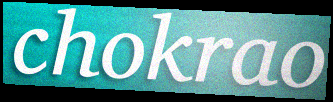
chokrao